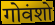
गोवंशो